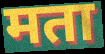
मता